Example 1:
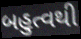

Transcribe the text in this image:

બહુત્વથી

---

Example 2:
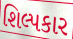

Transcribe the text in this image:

શિલ્પકાર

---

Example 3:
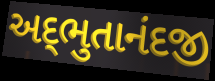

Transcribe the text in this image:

અદ્‌ભુતાનંદજી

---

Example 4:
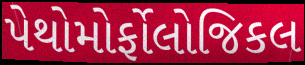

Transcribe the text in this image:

પેથોમોર્ફોલોજિકલ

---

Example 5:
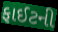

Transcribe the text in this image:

ફાઈટની